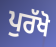
ਪੁਰੱਖੋ